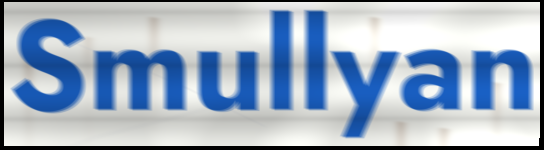
Smullyan